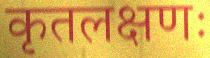
कृतलक्षणः